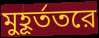
মুহূর্ততরে